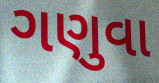
ગણુવા